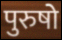
पुरुषो